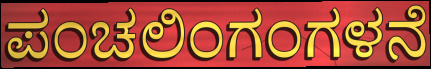
ಪಂಚಲಿಂಗಂಗಳನೆ